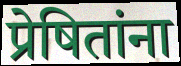
प्रेषितांना